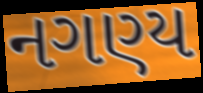
નગણ્ય